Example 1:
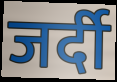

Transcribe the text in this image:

जर्दी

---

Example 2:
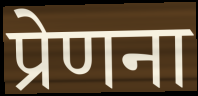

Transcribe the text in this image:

प्रेणना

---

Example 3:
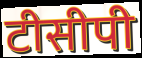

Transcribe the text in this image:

टीसीपी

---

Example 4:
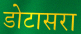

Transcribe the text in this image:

डोटासरा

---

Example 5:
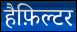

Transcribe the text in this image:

हैफ़िल्टर